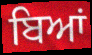
ਬਿਆਂ